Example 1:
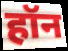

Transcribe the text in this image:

हॉन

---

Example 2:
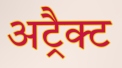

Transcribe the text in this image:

अट्रैक्ट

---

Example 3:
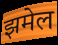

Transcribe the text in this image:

झमेल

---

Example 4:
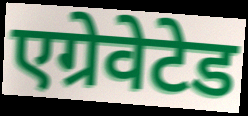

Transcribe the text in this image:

एग्रेवेटेड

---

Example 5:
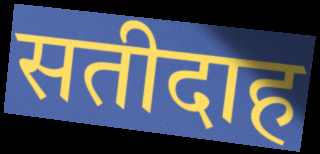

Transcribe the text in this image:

सतीदाह